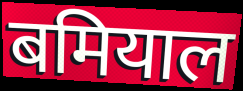
बमियाल